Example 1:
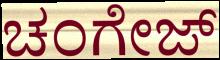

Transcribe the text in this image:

ಚಂಗೇಜ್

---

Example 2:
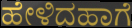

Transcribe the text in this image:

ಹೇಳಿದಹಾಗೆ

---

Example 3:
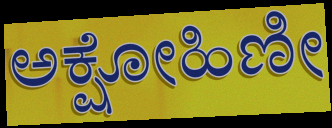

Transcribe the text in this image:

ಅಕ್ಷೋಹಿಣೀ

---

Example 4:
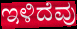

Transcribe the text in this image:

ಇಳಿದೆವು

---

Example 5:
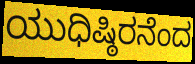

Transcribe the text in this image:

ಯುಧಿಷ್ಠಿರನೆಂದ